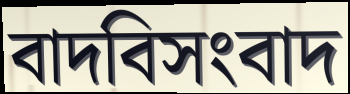
বাদবিসংবাদ